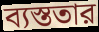
ব্যস্ততার